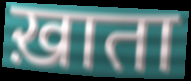
ख़ाता